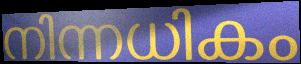
നിന്നധികം